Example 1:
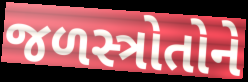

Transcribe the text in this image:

જળસ્ત્રોતોને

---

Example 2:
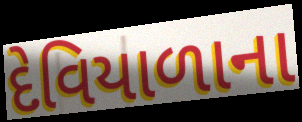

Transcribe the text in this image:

દેવિયાળાના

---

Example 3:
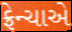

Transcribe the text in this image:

ફ્રેન્ચાએ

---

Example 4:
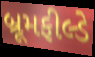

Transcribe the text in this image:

બ્રૂમફીલ્ડે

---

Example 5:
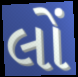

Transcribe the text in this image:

લોં